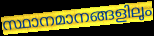
സ്ഥാനമാനങ്ങളിലും